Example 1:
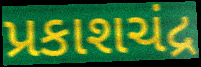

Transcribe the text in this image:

પ્રકાશચંદ્ર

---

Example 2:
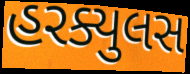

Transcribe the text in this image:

હરક્યુલસ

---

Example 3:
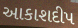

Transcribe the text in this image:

આકાશદીપ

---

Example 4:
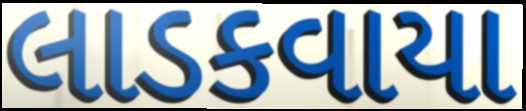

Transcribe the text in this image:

લાડકવાયા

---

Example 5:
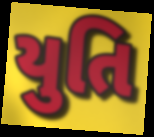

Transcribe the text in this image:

યુતિ